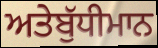
ਅਤੇਬੁੱਧੀਮਾਨ